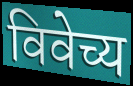
विवेच्य